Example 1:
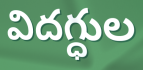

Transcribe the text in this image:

విదగ్ధుల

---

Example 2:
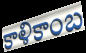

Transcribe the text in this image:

కాళికాంబ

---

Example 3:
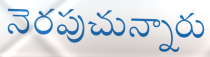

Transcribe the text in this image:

నెరపుచున్నారు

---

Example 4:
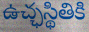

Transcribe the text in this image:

ఉచ్ఛస్థితికి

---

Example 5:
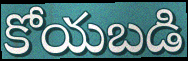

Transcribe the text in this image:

కోయబడి